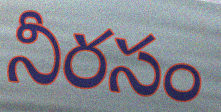
నీరసం